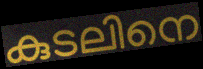
കുടലിനെ